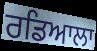
ਰਡਿਆਲਾ